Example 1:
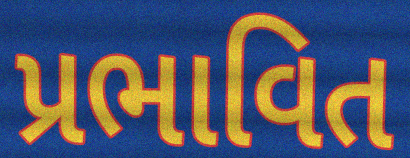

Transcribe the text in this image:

પ્રભાવિત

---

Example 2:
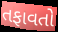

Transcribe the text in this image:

તફાવતો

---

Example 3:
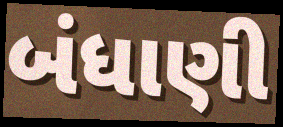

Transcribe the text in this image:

બંધાણી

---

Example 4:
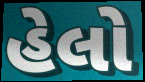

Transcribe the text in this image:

હેલો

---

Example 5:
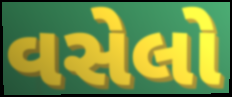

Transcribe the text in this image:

વસેલો